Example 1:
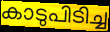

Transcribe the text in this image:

കാടുപിടിച്ച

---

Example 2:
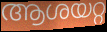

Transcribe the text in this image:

ആശയറ്റ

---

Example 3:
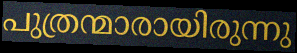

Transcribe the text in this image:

പുത്രന്മാരായിരുന്നു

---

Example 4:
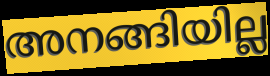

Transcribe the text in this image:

അനങ്ങിയില്ല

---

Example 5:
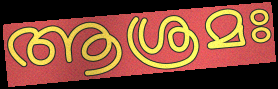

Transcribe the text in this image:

ആശ്രമഃ